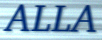
ALLA